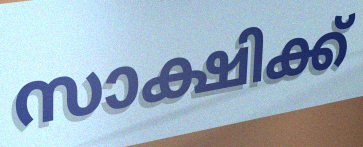
സാക്ഷിക്ക്